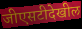
जीएसटीदेखील